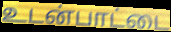
உடன்பாட்டை